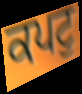
ਕਪਟੁ